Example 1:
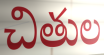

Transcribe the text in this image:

చితుల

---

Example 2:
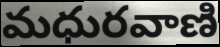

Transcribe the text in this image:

మధురవాణి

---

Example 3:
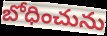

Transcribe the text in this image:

బోధించును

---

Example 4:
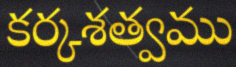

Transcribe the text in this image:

కర్కశత్వము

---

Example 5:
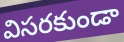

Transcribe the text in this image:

విసరకుండా